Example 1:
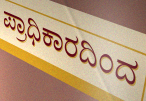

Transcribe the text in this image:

ಪ್ರಾಧಿಕಾರದಿಂದ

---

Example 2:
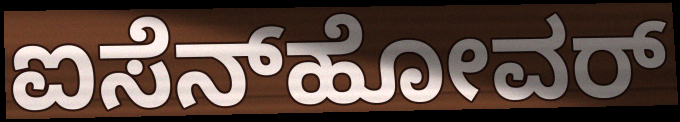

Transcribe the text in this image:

ಐಸೆನ್‍ಹೋವರ್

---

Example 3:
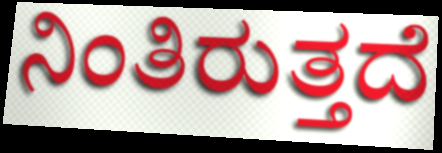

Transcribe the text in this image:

ನಿಂತಿರುತ್ತದೆ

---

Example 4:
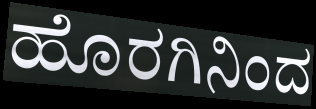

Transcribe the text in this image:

ಹೊರಗಿನಿಂದ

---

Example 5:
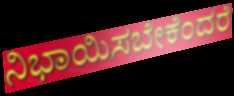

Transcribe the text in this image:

ನಿಭಾಯಿಸಬೇಕೆಂದರೆ